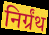
निर्ग्रंथ